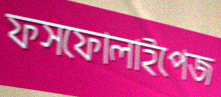
ফসফোলাইপেজ